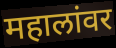
महालांवर